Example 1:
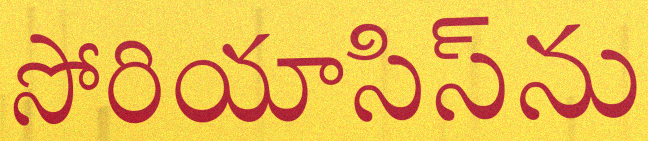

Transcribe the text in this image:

సోరియాసిస్‌ను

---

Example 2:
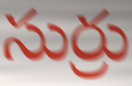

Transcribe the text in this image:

సుర్రు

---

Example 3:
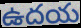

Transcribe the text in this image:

ఉదయ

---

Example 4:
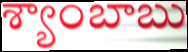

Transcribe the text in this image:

శ్యాంబాబు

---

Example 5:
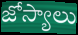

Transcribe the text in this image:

జోస్యాలు